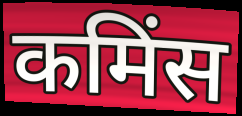
कमिंस